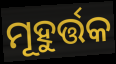
ମୂହୁର୍ତ୍ତକ